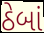
ઠેબાં